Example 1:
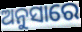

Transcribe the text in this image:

ଅନୁସାରେ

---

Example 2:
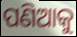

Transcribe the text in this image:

ପଣିଆକୁ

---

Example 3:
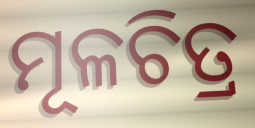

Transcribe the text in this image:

ମୂଳଚିତ୍ର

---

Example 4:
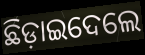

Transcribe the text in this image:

ଛିଡ଼ାଇଦେଲେ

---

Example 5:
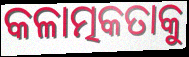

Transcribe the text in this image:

କଳାତ୍ମକତାକୁ